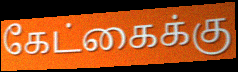
கேட்கைக்கு